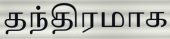
தந்திரமாக